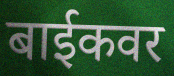
बाईकवर